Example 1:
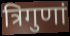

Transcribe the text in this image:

त्रिगुणां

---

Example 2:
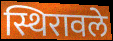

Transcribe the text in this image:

स्थिरावले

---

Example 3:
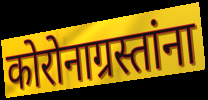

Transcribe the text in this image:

कोरोनाग्रस्तांना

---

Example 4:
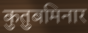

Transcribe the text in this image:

कुतुबमिनार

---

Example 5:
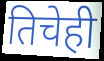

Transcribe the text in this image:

तिचेही